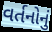
વર્તનોનું